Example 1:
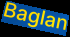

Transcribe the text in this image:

Baglan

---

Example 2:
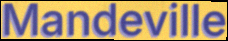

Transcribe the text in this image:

Mandeville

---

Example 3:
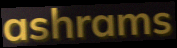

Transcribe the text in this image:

ashrams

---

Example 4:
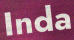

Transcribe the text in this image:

Inda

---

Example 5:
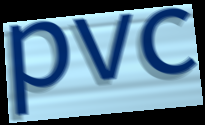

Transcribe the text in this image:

pvc